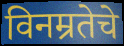
विनम्रतेचे